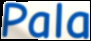
Pala